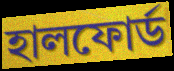
হালফোর্ড